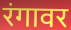
रंगावर